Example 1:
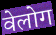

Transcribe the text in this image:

वेलोग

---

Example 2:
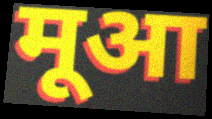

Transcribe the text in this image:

मूआ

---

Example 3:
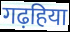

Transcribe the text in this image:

गढ़हिया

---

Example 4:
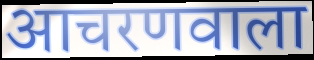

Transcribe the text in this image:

आचरणवाला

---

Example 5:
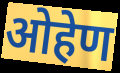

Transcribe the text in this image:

ओहेण